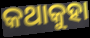
କଥାକୁହା